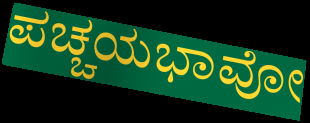
ಪಚ್ಚಯಭಾವೋ